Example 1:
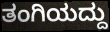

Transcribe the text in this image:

ತಂಗಿಯದ್ದು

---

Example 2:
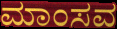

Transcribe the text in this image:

ಮಾಂಸವ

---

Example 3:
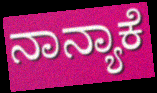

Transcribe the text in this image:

ನಾನ್ಯಾಕೆ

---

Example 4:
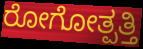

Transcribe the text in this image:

ರೋಗೋತ್ಪತ್ತಿ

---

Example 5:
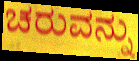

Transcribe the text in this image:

ಚರುವನ್ನು